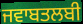
ਜਵਾਬਤਲਬੀ